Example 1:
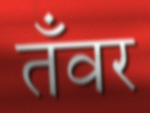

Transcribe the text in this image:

तँवर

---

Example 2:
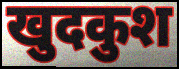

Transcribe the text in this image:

खुदकुश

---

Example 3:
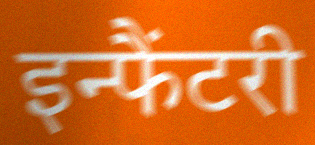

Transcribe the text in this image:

इन्फैंटरी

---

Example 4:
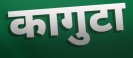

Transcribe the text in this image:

कागुटा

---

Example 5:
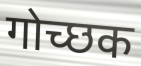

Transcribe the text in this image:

गोच्छक